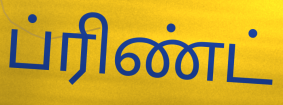
ப்ரிண்ட்